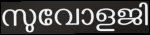
സുവോളജി